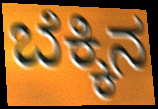
ಬೆಕ್ಕಿನ